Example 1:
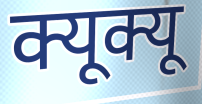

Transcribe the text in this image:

क्यूक्यू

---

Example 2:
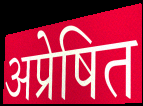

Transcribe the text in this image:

अप्रेषित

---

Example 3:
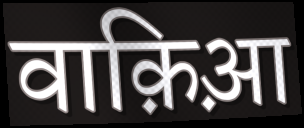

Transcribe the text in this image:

वाक़िआ़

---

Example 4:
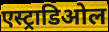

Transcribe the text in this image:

एस्ट्राडिओल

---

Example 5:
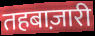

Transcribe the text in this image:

तहबाज़ारी